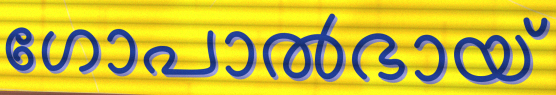
ഗോപാൽഭായ്